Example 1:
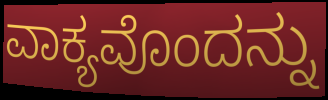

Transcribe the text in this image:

ವಾಕ್ಯವೊಂದನ್ನು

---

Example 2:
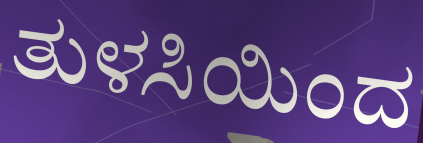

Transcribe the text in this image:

ತುಳಸಿಯಿಂದ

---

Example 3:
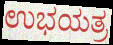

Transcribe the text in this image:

ಉಭಯತ್ರ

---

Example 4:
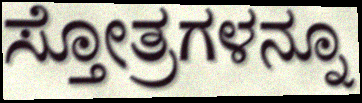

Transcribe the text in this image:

ಸ್ತೋತ್ರಗಳನ್ನೂ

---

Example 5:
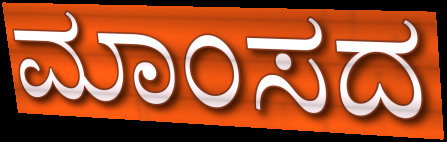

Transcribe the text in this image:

ಮಾಂಸದ